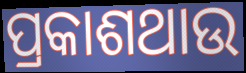
ପ୍ରକାଶଥାଉ